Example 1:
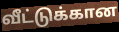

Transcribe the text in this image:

வீட்டுக்கான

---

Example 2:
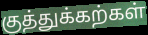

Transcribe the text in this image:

குத்துக்கற்கள்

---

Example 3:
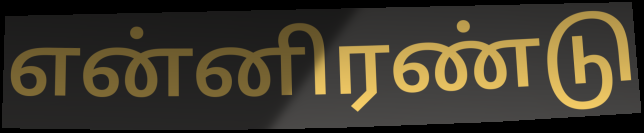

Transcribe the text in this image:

என்னிரண்டு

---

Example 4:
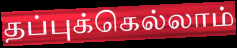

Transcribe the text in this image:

தப்புக்கெல்லாம்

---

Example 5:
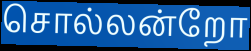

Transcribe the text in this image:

சொல்லன்றோ